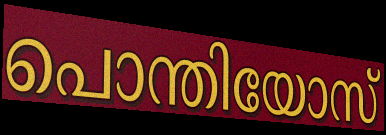
പൊന്തിയോസ്